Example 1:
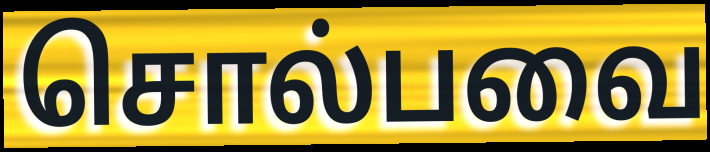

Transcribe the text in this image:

சொல்பவை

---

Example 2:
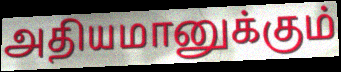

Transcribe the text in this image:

அதியமானுக்கும்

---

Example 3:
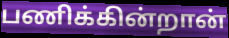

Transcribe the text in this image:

பணிக்கின்றான்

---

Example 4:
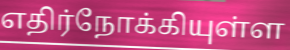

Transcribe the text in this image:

எதிர்நோக்கியுள்ள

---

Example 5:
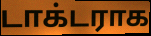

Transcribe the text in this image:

டாக்டராக